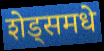
शेड्समधे